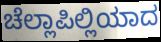
ಚೆಲ್ಲಾಪಿಲ್ಲಿಯಾದ